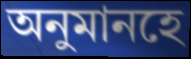
অনুমানহে